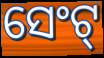
ସେଂଟ୍